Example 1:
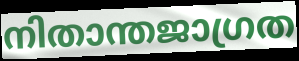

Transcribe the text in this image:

നിതാന്തജാഗ്രത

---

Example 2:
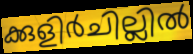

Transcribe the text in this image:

ക്കുളിർചില്ലിൽ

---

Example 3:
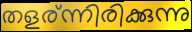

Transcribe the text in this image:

തളര്ന്നിരിക്കുന്നു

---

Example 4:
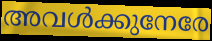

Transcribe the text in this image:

അവൾക്കുനേരേ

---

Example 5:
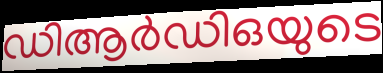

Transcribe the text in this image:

ഡിആർഡിഒയുടെ